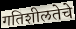
गतिशीलतेचे